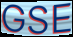
GSE